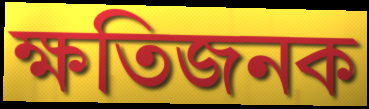
ক্ষতিজনক